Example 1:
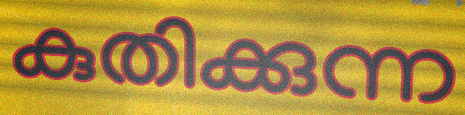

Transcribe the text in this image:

കുതിക്കുന്ന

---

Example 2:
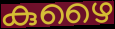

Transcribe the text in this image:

കുഴൈ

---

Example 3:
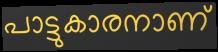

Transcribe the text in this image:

പാട്ടുകാരനാണ്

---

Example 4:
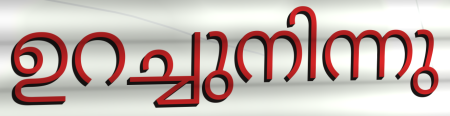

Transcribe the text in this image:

ഉറച്ചുനിന്നു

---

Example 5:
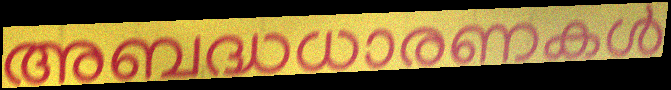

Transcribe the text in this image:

അബദ്ധധാരണകൾ